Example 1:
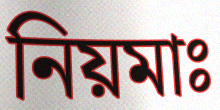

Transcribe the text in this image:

নিয়মাঃ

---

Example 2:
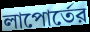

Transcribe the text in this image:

লাপোর্তের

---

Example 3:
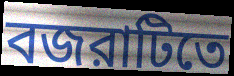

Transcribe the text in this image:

বজরাটিতে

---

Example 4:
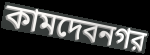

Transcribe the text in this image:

কামদেবনগর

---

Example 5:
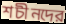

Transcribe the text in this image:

শচীনদের